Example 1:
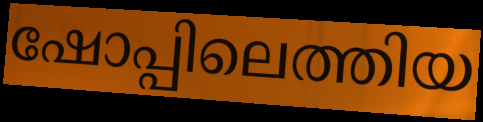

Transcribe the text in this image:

ഷോപ്പിലെത്തിയ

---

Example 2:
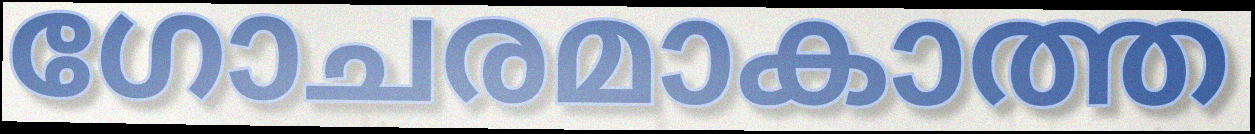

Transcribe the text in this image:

ഗോചരമാകാത്ത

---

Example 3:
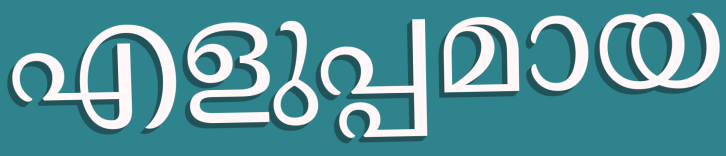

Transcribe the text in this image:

എളുപ്പമായ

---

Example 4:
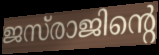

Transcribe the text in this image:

ജസ്‌രാജിന്റെ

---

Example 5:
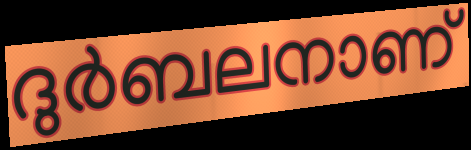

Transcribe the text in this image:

ദുർബലനാണ്